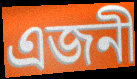
এজনী